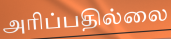
அரிப்பதில்லை